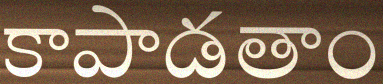
కాపాడతాం